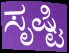
ಸೃಷ್ಟಿ